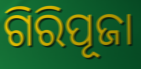
ଗିରିପୂଜା